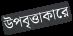
উপবৃত্তাকারে